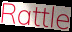
Rattle